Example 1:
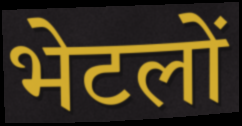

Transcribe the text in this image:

भेटलों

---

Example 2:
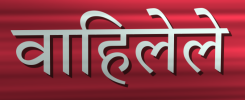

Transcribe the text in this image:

वाहिलेले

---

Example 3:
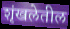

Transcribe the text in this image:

शृंखलेतील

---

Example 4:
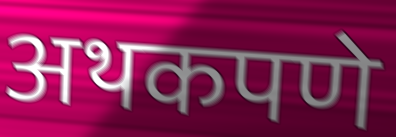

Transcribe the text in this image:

अथकपणे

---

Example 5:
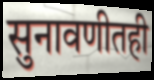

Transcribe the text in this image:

सुनावणीतही